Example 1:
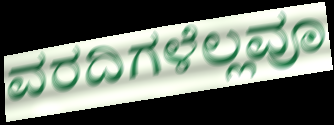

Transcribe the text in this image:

ವರದಿಗಳೆಲ್ಲವೂ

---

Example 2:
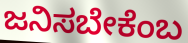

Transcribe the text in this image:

ಜನಿಸಬೇಕೆಂಬ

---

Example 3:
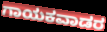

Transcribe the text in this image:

ಗಾಯಕವಾಡರ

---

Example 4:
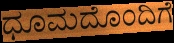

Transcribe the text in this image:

ಧೂಮದೊಂದಿಗೆ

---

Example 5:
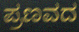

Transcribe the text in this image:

ಪ್ರಣವದ